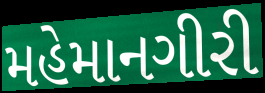
મહેમાનગીરી